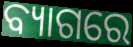
ବ୍ୟାଗରେ